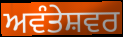
ਅਵੰਤੇਸ਼ਵਰ